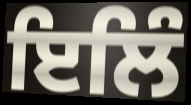
ਇਲਿੰ